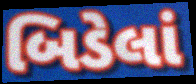
બિડેલાં